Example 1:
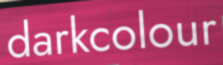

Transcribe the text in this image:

darkcolour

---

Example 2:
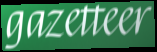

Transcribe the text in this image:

gazetteer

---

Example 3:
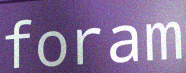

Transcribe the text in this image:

foram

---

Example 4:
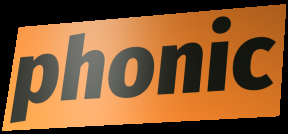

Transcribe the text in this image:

phonic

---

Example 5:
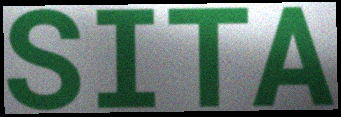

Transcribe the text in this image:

SITA